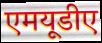
एमयूडीए